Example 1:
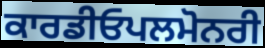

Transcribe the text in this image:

ਕਾਰਡੀਓਪਲਮੋਨਰੀ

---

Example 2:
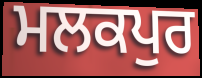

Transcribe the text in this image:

ਮਲਕਪੁਰ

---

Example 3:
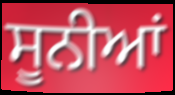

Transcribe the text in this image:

ਸੂਨੀਆਂ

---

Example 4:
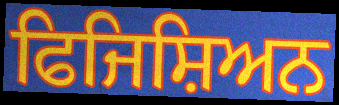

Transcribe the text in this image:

ਫਿਜਿਸ਼ਿਅਨ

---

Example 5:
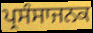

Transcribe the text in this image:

ਪ੍ਰਸੰਸਾਜਨਕ